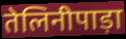
तेलिनीपाड़ा